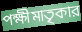
পক্ষীমাতৃকার